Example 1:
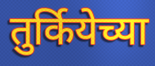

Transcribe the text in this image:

तुर्कियेच्या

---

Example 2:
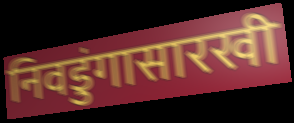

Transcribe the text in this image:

निवडुंगासारखी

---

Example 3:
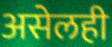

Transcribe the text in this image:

असेलही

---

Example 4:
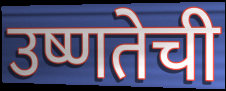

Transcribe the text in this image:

उष्णतेची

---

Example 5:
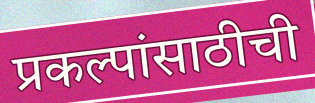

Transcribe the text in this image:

प्रकल्पांसाठीची